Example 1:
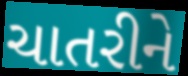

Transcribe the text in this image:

ચાતરીને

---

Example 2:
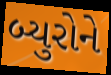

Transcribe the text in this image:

બ્યુરોને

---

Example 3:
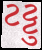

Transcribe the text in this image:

ટટ્ટુ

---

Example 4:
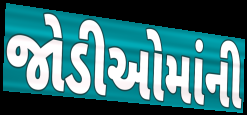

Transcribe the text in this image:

જોડીઓમાંની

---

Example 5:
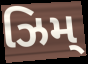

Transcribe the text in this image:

ઝિમ્